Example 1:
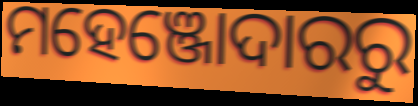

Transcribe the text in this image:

ମହେଞ୍ଜୋଦାରରୁ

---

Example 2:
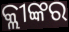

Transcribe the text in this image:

କ୍ଲୀଙ୍କର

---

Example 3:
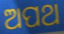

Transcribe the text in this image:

ଅପଥ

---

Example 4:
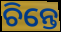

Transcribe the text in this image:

ଚିନ୍ତେ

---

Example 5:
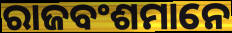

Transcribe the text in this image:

ରାଜବଂଶମାନେ